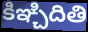
కిఞ్చిదితి